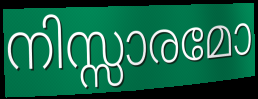
നിസ്സാരമോ